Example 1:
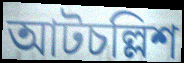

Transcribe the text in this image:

আটচল্লিশ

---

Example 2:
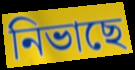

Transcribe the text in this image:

নিভাছে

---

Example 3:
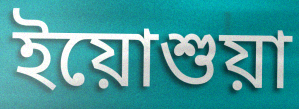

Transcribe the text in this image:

ইয়োশুয়া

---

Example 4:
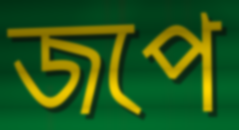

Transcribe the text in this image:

জপে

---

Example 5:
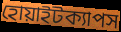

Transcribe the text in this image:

হোয়াইটক্যাপস